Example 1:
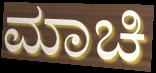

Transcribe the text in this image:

ಮಾಚಿ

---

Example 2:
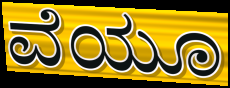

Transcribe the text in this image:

ವೆಯೂ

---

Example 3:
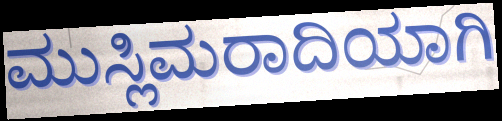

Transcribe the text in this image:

ಮುಸ್ಲಿಮರಾದಿಯಾಗಿ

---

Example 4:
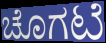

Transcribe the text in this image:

ಚೊಗಟೆ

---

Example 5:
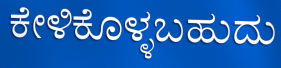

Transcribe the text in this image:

ಕೇಳಿಕೊಳ್ಳಬಹುದು